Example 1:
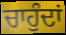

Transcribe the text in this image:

ਚਾਹੁੰਦਾਂ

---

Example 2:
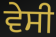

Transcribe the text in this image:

ਵੇਸੀ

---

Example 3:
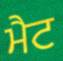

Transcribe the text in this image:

ਮੈਟ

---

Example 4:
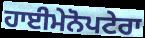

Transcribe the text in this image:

ਹਾਈਮੇਨੋਪਟੇਰਾ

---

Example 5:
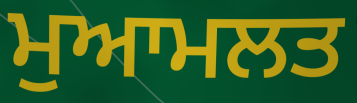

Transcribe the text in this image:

ਮੁਆਮਲਤ